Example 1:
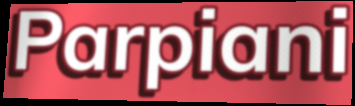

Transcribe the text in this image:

Parpiani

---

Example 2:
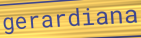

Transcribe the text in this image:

gerardiana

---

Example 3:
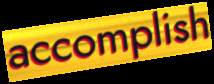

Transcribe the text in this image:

accomplish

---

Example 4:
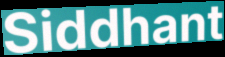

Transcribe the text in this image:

Siddhant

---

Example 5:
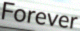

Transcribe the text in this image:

Forever